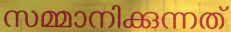
സമ്മാനിക്കുന്നത്